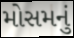
મોસમનું